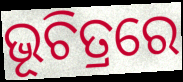
ଭୂଚିତ୍ରରେ